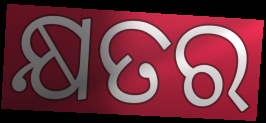
କ୍ଷତର